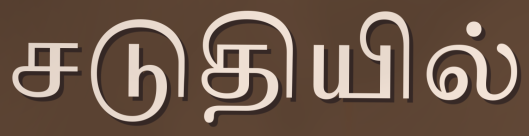
சடுதியில்